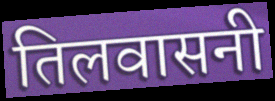
तिलवासनी